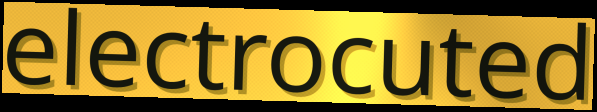
electrocuted